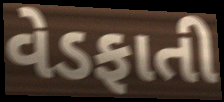
વેડફાતી